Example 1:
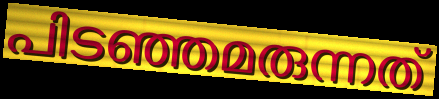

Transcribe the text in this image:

പിടഞ്ഞമരുന്നത്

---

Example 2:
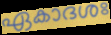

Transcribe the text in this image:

ഏകാദശഃ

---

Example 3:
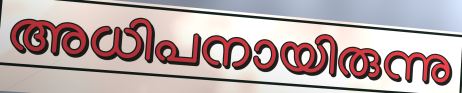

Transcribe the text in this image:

അധിപനായിരുന്നു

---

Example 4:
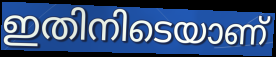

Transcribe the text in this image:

ഇതിനിടെയാണ്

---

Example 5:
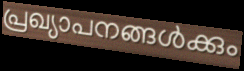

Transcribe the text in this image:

പ്രഖ്യാപനങ്ങൾക്കും